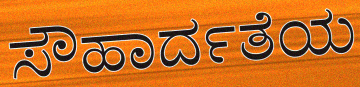
ಸೌಹಾರ್ದತೆಯ